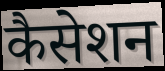
कैसेशन